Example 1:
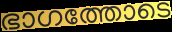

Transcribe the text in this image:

ഭാഗത്തോടെ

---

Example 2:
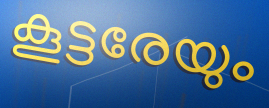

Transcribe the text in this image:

കൂട്ടരേയും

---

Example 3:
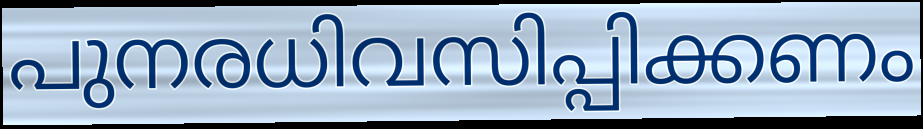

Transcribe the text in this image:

പുനരധിവസിപ്പിക്കണം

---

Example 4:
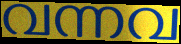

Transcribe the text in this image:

വന്നവ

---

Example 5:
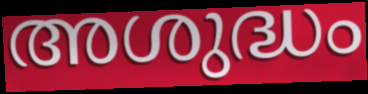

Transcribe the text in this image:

അശുദ്ധം